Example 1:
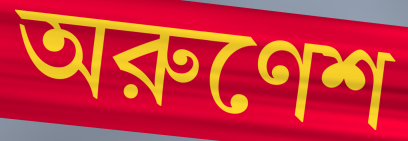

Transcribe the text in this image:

অরুণেশ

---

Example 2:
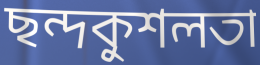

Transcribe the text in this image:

ছন্দকুশলতা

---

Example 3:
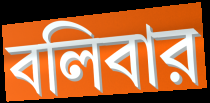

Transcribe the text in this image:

বলিবার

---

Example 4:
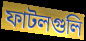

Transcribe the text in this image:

ফাটলগুলি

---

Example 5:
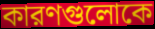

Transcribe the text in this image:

কারণগুলোকে